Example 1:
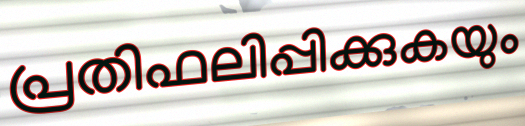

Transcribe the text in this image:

പ്രതിഫലിപ്പിക്കുകയും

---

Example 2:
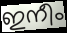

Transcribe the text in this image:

ഇനീം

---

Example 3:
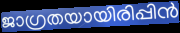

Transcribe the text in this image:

ജാഗ്രതയായിരിപ്പിൻ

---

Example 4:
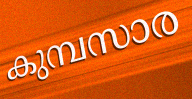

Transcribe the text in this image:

കുമ്പസാര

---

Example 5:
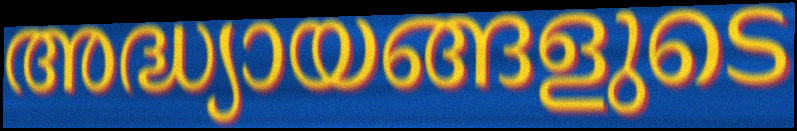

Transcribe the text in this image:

അദ്ധ്യായങ്ങളുടെ